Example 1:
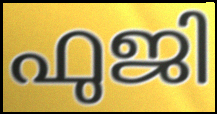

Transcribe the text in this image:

ഫുജി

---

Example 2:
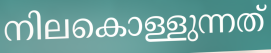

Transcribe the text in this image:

നിലകൊള്ളുന്നത്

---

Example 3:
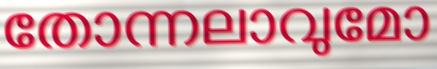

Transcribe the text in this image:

തോന്നലാവുമോ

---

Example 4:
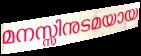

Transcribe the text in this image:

മനസ്സിനുടമയായ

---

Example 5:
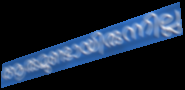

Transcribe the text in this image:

ആരുമുണ്ടായിരുന്നില്ല